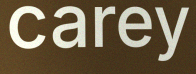
carey